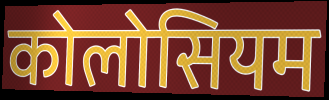
कोलोसियम